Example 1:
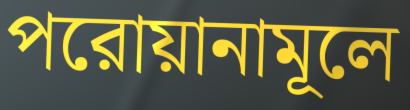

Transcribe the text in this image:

পরোয়ানামূলে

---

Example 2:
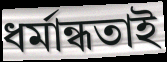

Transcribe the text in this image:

ধর্মান্ধতাই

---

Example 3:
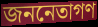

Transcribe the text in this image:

জননেতাগণ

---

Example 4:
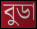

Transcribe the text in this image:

বুডা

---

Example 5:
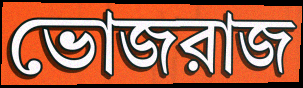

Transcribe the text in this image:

ভোজরাজ